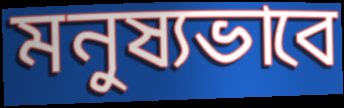
মনুষ্যভাবে